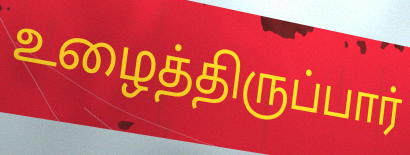
உழைத்திருப்பார்